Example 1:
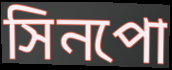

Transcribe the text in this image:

সিনপো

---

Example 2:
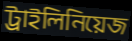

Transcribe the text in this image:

ট্রাইলিনিয়েজ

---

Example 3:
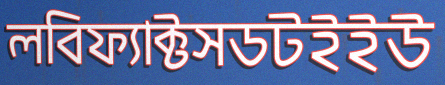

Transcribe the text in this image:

লবিফ্যাক্টসডটইইউ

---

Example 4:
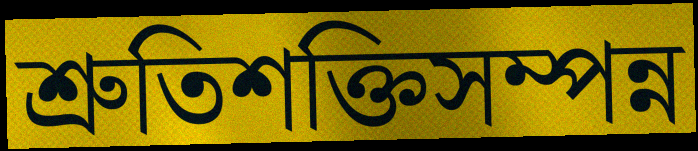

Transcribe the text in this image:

শ্রুতিশক্তিসম্পন্ন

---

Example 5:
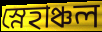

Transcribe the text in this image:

স্নেহাঞ্চল